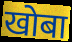
खोबा